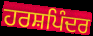
ਹਰਸ਼ਪਿੰਦਰ